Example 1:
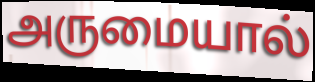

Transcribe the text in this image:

அருமையால்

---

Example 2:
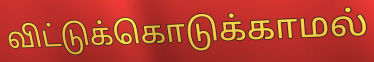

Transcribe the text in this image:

விட்டுக்கொடுக்காமல்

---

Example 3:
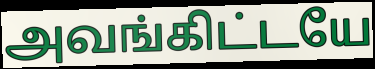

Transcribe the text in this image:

அவங்கிட்டயே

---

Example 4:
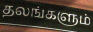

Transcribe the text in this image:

தலங்களும்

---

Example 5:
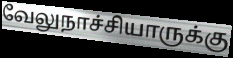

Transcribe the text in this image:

வேலுநாச்சியாருக்கு